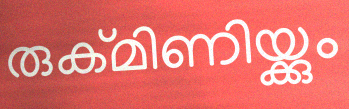
രുക്മിണിയ്ക്കും